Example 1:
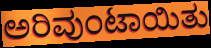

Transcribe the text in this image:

ಅರಿವುಂಟಾಯಿತು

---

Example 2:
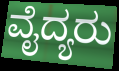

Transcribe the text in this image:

ವೈದ್ಯರು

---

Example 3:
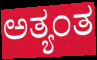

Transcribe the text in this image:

ಅತ್ಯಂತ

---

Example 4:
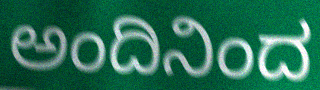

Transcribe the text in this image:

ಅಂದಿನಿಂದ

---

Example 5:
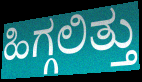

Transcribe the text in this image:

ಹಿಗ್ಗಲಿತ್ತು